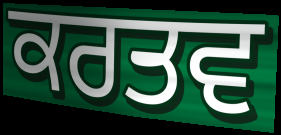
ਕਰਤਵ